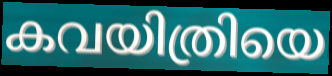
കവയിത്രിയെ